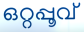
ഒറ്റപ്പൂവ്